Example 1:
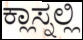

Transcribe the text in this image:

ಕ್ಲಾಸ್ನಲ್ಲಿ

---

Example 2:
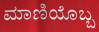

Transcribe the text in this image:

ಮಾಣಿಯೊಬ್ಬ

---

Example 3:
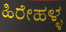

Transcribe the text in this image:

ಹಿರೇಹಳ್ಳ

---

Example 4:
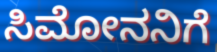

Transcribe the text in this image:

ಸಿಮೋನನಿಗೆ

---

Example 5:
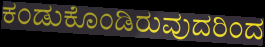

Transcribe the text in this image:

ಕಂಡುಕೊಂಡಿರುವುದರಿಂದ